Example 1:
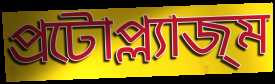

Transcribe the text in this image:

প্রটোপ্ল্যাজ্ম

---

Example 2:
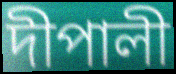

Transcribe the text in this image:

দীপালী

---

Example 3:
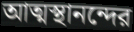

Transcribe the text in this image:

আত্মস্থানন্দের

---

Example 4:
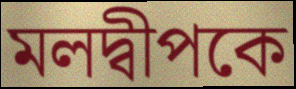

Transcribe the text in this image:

মলদ্বীপকে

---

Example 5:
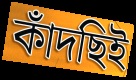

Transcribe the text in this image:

কাঁদছিই